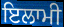
ਇਲਾਮੀ